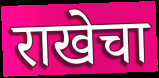
राखेचा